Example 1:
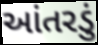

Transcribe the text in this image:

આંતરડું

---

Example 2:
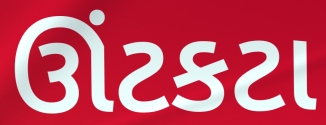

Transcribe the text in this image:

ઊંટકટા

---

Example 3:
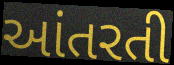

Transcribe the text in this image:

આંતરતી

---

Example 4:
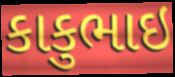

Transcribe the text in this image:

કાકુભાઇ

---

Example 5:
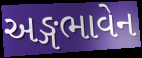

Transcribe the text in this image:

અઙ્ગભાવેન